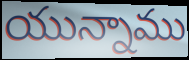
యున్నాము